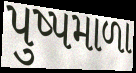
પુષ્પમાળા